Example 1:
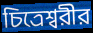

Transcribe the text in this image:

চিত্রেশ্বরীর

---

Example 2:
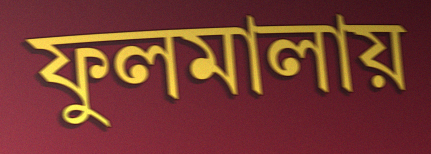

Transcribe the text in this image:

ফুলমালায়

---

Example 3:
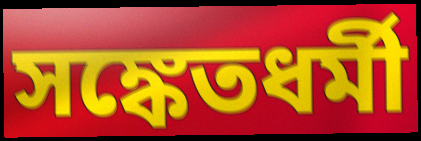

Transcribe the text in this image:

সঙ্কেতধর্মী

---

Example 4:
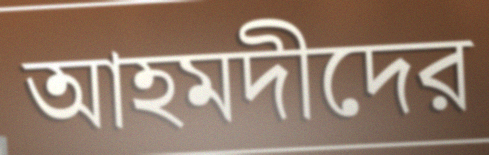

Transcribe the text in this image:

আহমদীদের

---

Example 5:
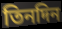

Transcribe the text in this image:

তিনদিন